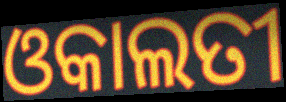
ଓକାଲତୀ